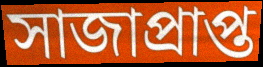
সাজাপ্রাপ্ত